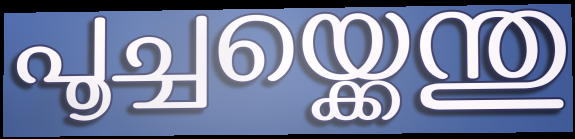
പൂച്ചയ്ക്കെന്തു